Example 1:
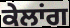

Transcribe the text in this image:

ਕੇਲਾਂਗ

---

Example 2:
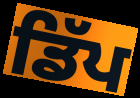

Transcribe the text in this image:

ਡਿੱਪ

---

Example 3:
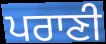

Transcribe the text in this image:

ਪਰਾਣੀ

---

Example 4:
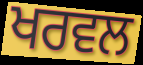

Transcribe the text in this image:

ਖਰਵਲ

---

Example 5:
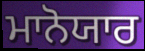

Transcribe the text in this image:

ਮਾਨੋਯਾਰ